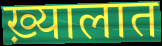
ख़्यालात